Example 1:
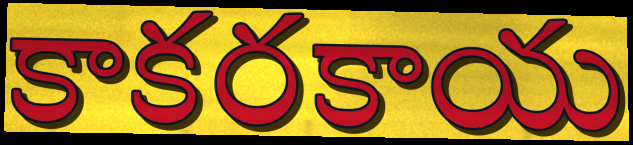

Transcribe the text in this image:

కాకరకాయ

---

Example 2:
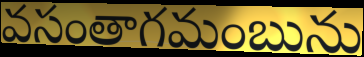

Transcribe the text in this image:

వసంతాగమంబును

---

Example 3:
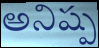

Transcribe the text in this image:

అనిష్ప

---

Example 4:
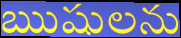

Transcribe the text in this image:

ఋషులను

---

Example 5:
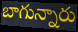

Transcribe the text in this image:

బాగున్నారు